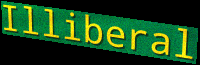
Illiberal